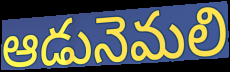
ఆడునెమలి